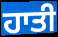
ਹਾਤੀ